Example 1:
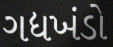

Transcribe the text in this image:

ગદ્યખંડો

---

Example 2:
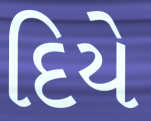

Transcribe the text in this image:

દિયે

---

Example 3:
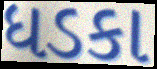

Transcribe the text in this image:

ધડકા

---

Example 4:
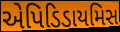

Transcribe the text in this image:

એપિડિડાયમિસ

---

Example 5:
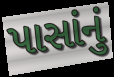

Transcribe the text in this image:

પાસાંનું